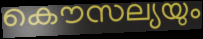
കൌസല്യയും